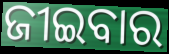
ଜୀଇବାର